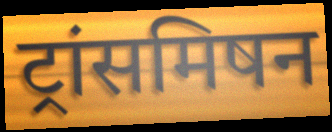
ट्रांसमिषन